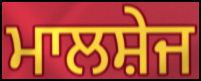
ਮਾਲਸ਼ੇਜ